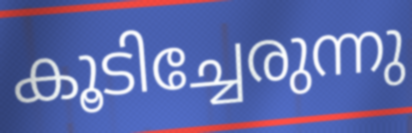
കൂടിച്ചേരുന്നു